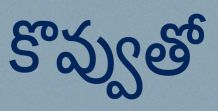
కొవ్వుతో